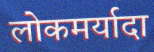
लोकमर्यादा